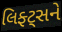
લિફ્ટ્સને